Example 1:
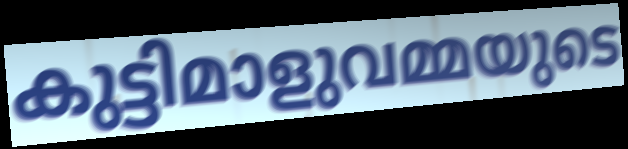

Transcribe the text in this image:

കുട്ടിമാളുവമ്മയുടെ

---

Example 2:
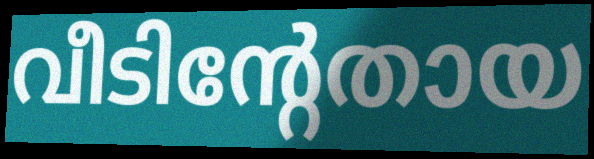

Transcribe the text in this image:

വീടിന്റേതായ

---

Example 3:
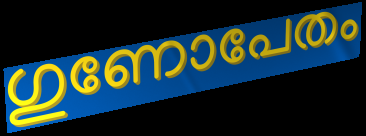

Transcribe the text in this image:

ഗുണോപേതം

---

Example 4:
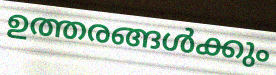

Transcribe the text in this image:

ഉത്തരങ്ങൾക്കും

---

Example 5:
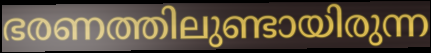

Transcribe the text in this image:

ഭരണത്തിലുണ്ടായിരുന്ന